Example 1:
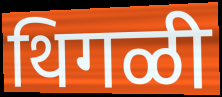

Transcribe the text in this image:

थिगळी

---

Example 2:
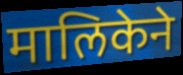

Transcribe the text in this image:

मालिकेने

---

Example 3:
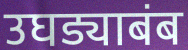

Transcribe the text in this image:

उघड्याबंब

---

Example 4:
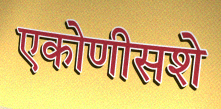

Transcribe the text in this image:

एकोणीसशे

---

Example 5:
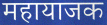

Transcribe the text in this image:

महायाजक